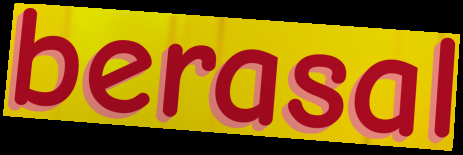
berasal